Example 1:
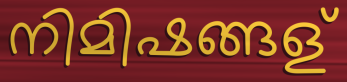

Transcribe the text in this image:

നിമിഷങ്ങള്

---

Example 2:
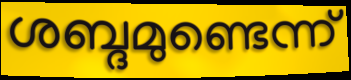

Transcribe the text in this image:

ശബ്ദമുണ്ടെന്ന്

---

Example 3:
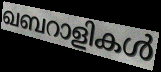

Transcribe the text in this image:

ഖബറാളികൾ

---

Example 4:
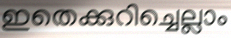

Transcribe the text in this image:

ഇതെക്കുറിച്ചെല്ലാം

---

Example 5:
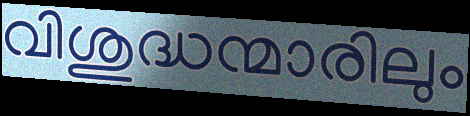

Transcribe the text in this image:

വിശുദ്ധന്മാരിലും